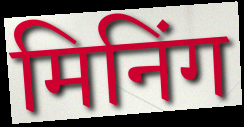
मिनिंग